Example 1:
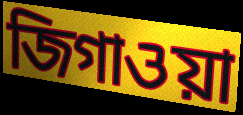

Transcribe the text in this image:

জিগাওয়া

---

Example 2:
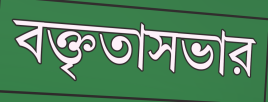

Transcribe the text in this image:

বক্তৃতাসভার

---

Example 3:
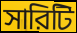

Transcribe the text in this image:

সারিটি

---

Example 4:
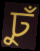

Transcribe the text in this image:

ঢুঁ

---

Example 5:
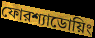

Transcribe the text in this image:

ফোরশ্যাডোয়িং